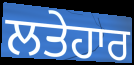
ਲਤੇਹਾਰ